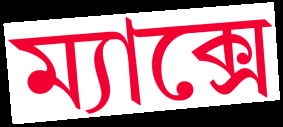
ম্যাক্সে